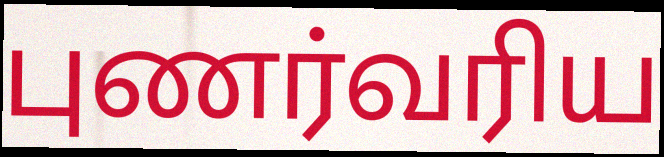
புணர்வரிய